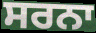
ਸਰਨਾ